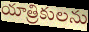
యాత్రికులను